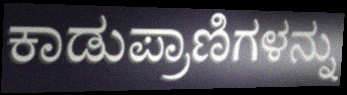
ಕಾಡುಪ್ರಾಣಿಗಳನ್ನು